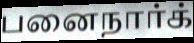
பனைநார்க்